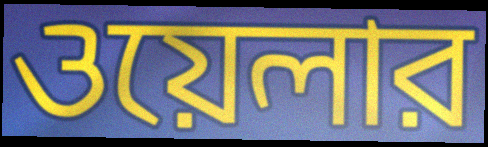
ওয়েলার